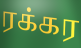
ரக்கர